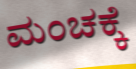
ಮಂಚಕ್ಕೆ